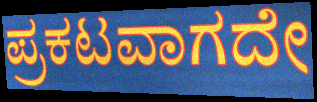
ಪ್ರಕಟವಾಗದೇ